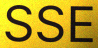
SSE